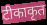
टीकाकृत